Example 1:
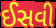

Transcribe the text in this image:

ઈસવી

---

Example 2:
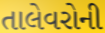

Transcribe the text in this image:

તાલેવરોની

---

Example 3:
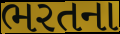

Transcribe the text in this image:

ભરતના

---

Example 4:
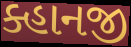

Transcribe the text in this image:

ક્હાનજી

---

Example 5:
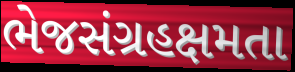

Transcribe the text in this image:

ભેજસંગ્રહક્ષમતા